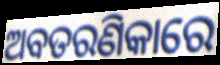
ଅବତରଣିକାରେ